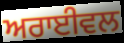
ਅਰਾਈਵਲ